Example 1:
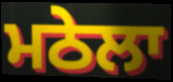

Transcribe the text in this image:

ਮਠੇਲਾ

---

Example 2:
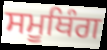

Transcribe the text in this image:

ਸਮੂਥਿੰਗ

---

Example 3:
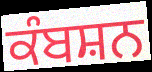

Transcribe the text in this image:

ਕੰਬਸ਼ਨ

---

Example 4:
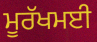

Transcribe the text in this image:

ਮੂਰੱਖਮਈ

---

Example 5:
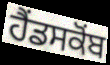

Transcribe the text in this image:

ਹੈਂਡਸਕੋਂਬ